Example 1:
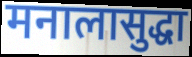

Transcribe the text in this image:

मनालासुद्धा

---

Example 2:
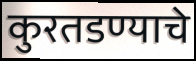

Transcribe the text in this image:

कुरतडण्याचे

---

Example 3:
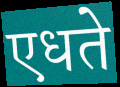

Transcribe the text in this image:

एधते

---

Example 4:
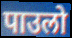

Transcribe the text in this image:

पाउलो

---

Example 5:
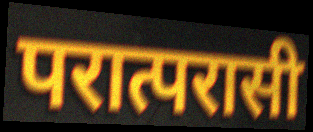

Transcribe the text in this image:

परात्परासी